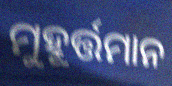
ମୁହୂର୍ତ୍ତମାନ